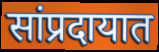
सांप्रदायात